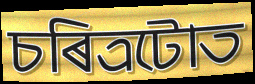
চৰিত্ৰটোত